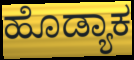
ಹೊಡ್ಯಾಕ